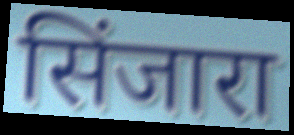
सिंजारा